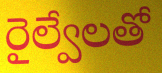
రైల్వేలతో